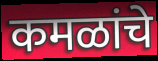
कमळांचे